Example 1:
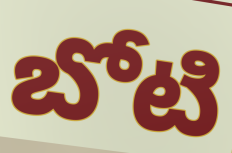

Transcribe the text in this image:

బోటి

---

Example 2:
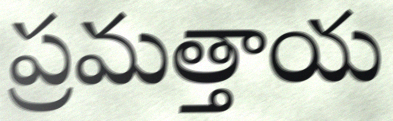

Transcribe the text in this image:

ప్రమత్తాయ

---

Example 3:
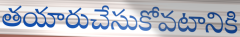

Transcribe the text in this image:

తయారుచేసుకోవటానికి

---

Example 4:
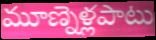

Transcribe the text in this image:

మూణ్నెళ్లపాటు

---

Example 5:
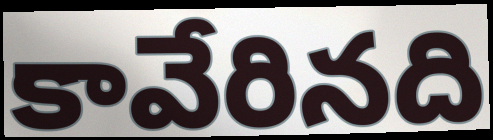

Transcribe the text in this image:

కావేరినది